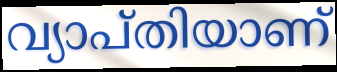
വ്യാപ്തിയാണ്